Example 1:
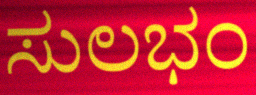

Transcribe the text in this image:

ಸುಲಭಂ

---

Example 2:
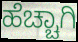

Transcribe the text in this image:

ಹೆಚ್ಚಾಗಿ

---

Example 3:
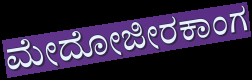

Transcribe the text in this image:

ಮೇದೋಜೀರಕಾಂಗ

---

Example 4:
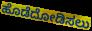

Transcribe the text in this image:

ಹೊಡೆದೋಡಿಸಲು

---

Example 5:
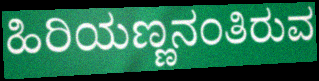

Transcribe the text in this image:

ಹಿರಿಯಣ್ಣನಂತಿರುವ